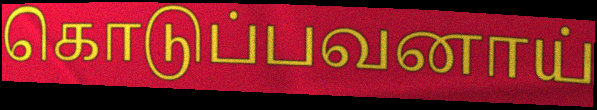
கொடுப்பவனாய்